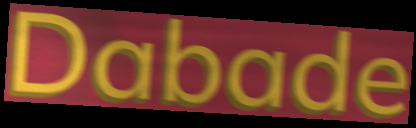
Dabade